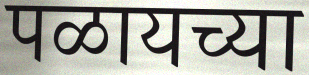
पळायच्या